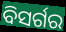
ବିସର୍ଗର